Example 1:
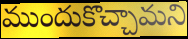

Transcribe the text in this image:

ముందుకొచ్చామని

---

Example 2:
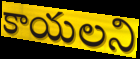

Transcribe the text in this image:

కాయలని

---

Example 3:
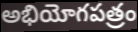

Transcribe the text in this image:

అభియోగపత్రం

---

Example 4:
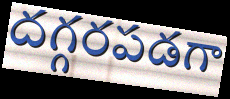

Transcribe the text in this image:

దగ్గరపడగా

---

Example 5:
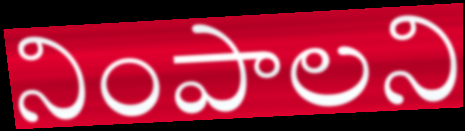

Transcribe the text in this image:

నింపాలని